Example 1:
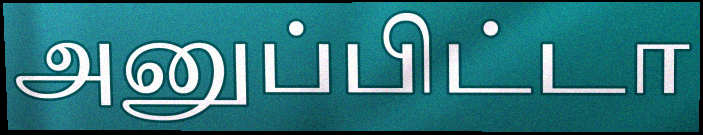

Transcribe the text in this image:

அனுப்பிட்டா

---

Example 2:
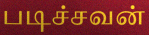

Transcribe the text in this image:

படிச்சவன்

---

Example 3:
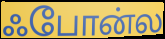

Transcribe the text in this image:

ஃபோன்ல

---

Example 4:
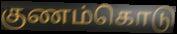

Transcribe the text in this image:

குணம்கொடு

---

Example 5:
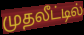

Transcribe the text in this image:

முதலீட்டில்